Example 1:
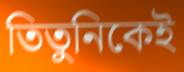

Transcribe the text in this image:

তিতুনিকেই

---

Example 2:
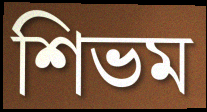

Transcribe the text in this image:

শিভম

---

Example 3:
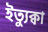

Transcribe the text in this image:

ইত্যুক্বা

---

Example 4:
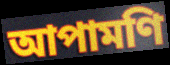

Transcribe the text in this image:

আপামণি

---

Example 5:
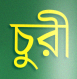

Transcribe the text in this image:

চুরী